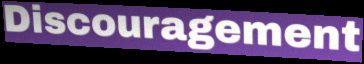
Discouragement